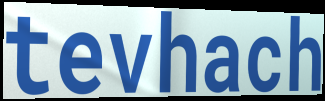
tevhach